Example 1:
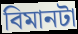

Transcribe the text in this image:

বিমানটা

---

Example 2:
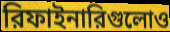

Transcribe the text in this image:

রিফাইনারিগুলোও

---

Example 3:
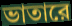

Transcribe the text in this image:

ভাতারে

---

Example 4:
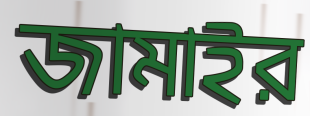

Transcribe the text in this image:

জামাইর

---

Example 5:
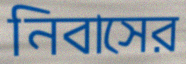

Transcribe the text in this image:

নিবাসের